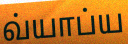
வ்யாப்ய